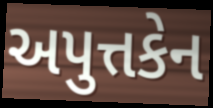
અપુત્તકેન